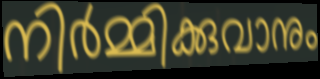
നിർമ്മിക്കുവാനും